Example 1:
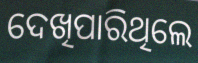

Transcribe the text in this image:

ଦେଖିପାରିଥିଲେ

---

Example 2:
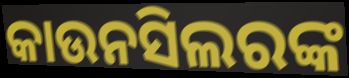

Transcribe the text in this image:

କାଉନସିଲରଙ୍କ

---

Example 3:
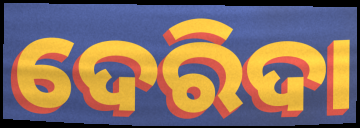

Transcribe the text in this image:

ଦେରିଦା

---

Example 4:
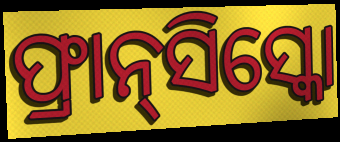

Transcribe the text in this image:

ଫ୍ରାନ୍‌ସିସ୍କୋ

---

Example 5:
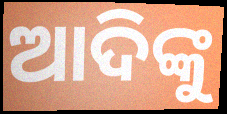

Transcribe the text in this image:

ଆଦିଙ୍କୁ